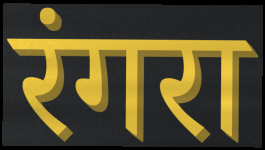
रंगरा